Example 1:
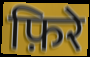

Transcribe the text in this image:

फ़िरे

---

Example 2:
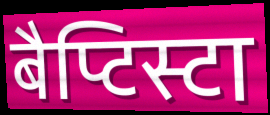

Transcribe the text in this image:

बैप्टिस्टा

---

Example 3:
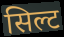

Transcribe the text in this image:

सिल्ट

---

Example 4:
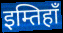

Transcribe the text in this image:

इम्तिहाँ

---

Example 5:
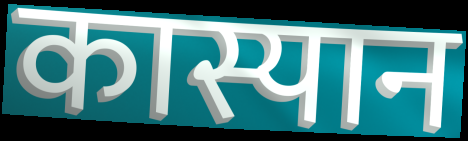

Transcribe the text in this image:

कास्यान